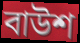
বাউশ